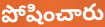
పోషించారు